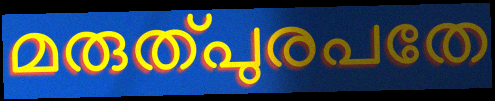
മരുത്പുരപതേ